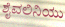
ಶೈವಲಿನಿಯು